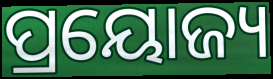
ପ୍ରୟୋଜ୍ୟ